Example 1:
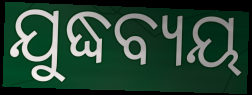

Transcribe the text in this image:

ଯୁଦ୍ଧବ୍ୟୟ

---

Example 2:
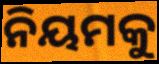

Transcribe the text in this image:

ନିୟମକୁ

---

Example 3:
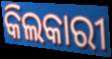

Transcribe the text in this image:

କିଲକାରୀ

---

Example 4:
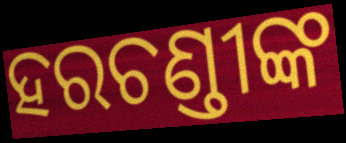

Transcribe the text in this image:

ହରଚଣ୍ଡୀଙ୍କ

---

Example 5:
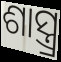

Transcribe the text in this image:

ଶାସ୍ତ୍ର୍ର